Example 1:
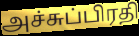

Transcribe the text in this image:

அச்சுப்பிரதி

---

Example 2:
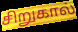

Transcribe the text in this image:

சிறுகால்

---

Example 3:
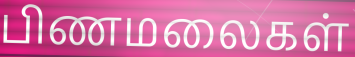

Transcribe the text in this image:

பிணமலைகள்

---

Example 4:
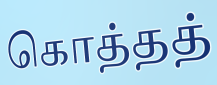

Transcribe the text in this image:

கொத்தத்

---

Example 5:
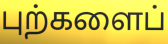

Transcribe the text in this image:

புற்களைப்